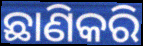
ଛାଣିକରି